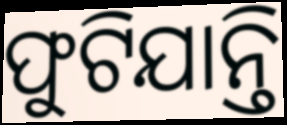
ଫୁଟିଯାନ୍ତି